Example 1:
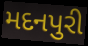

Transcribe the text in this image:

મદનપુરી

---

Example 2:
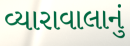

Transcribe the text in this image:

વ્યારાવાલાનું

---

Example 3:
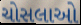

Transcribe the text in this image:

ચોસલાઓ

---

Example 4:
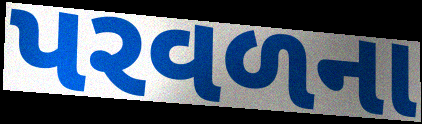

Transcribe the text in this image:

પરવળના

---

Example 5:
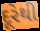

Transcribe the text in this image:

દૂરેથી